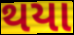
થયા